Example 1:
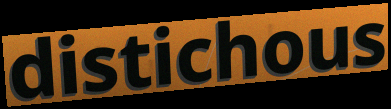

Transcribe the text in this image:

distichous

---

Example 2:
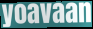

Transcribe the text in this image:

yoavaan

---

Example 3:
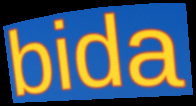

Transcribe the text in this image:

bida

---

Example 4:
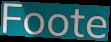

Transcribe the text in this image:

Foote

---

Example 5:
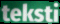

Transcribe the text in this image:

teksti